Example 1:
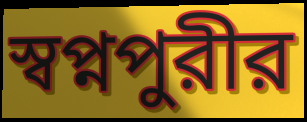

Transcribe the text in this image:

স্বপ্নপুরীর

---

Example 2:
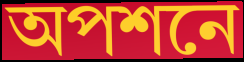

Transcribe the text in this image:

অপশনে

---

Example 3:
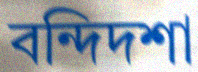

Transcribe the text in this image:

বন্দিদশা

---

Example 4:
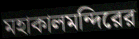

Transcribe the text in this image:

মহাকালমন্দিরের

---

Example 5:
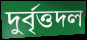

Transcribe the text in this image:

দুর্বৃত্তদল